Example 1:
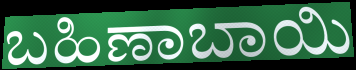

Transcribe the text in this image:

ಬಹಿಣಾಬಾಯಿ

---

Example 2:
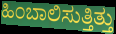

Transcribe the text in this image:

ಹಿಂಬಾಲಿಸುತ್ತಿತ್ತು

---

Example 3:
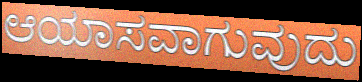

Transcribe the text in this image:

ಆಯಾಸವಾಗುವುದು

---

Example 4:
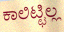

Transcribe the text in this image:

ಕಾಲಿಟ್ಟಿಲ್ಲ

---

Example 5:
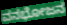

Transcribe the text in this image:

ವನಭೋಜನ